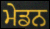
ਮੇਡਨ